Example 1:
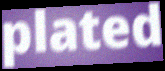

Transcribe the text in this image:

plated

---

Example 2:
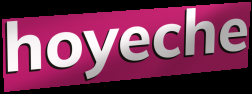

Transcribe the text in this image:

hoyeche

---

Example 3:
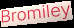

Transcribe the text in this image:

Bromiley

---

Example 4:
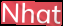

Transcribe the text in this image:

Nhat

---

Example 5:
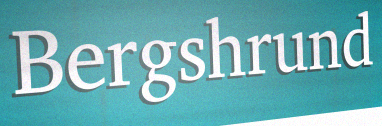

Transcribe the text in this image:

Bergshrund